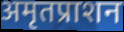
अमृतप्राशन